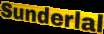
Sunderlal